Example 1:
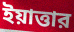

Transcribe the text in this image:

ইয়াত্তার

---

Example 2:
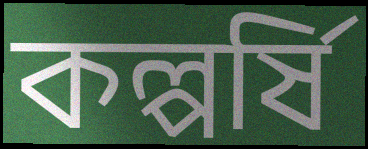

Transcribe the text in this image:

কল্পর্ষি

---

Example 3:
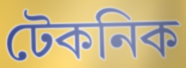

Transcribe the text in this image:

টেকনিক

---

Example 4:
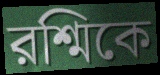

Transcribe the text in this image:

রশ্মিকে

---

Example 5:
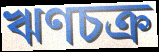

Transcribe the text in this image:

ঋণচক্র